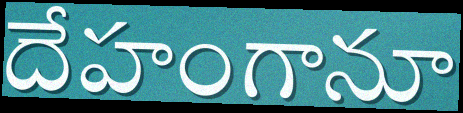
దేహంగానూ